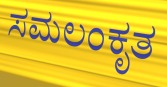
ಸಮಲಂಕೃತ